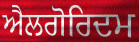
ਐਲਗੋਰਿਦਮ